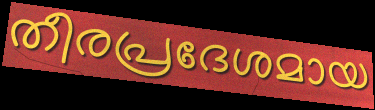
തീരപ്രദേശമായ